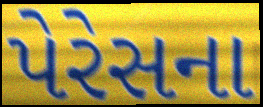
પેરેસના